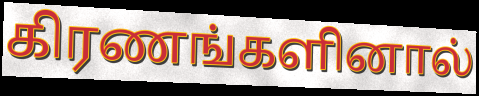
கிரணங்களினால்